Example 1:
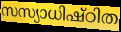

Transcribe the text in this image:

സസ്യാധിഷ്ഠിത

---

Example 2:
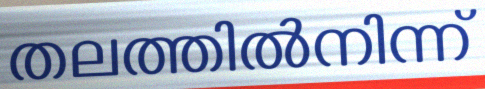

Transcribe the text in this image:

തലത്തിൽനിന്ന്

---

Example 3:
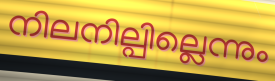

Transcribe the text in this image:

നിലനില്പില്ലെന്നും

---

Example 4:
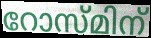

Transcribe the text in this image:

റോസ്മിന്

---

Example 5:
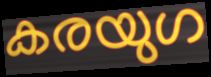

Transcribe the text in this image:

കരയുഗ